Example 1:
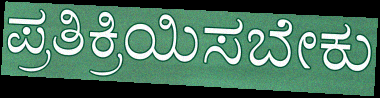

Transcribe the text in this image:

ಪ್ರತಿಕ್ರಿಯಿಸಬೇಕು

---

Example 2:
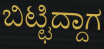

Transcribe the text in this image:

ಬಿಟ್ಟಿದ್ದಾಗ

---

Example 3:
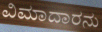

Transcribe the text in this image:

ವಿಮಾದಾರನು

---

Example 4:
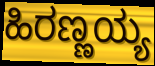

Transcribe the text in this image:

ಹಿರಣ್ಣಯ್ಯ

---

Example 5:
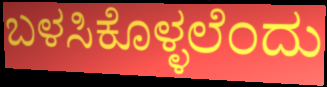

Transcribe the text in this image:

ಬಳಸಿಕೊಳ್ಳಲೆಂದು